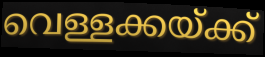
വെള്ളക്കയ്ക്ക്